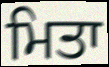
ਮਿਤਾ